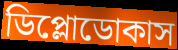
ডিপ্লোডোকাস